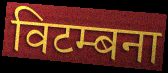
विटम्बना